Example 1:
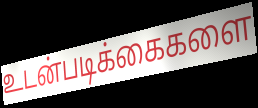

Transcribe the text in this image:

உடன்படிக்கைகளை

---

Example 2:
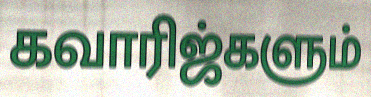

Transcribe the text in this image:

கவாரிஜ்களும்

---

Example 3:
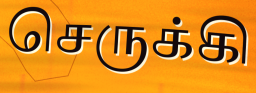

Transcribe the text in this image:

செருக்கி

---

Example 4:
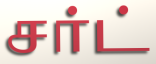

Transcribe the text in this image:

சர்ட்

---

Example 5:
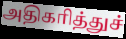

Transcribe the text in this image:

அதிகரித்துச்